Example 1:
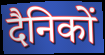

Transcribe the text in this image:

दैनिकों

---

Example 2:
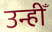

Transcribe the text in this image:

उन्हीँ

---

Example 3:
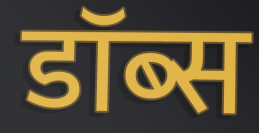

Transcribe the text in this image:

डॉब्स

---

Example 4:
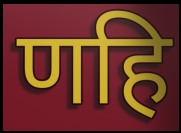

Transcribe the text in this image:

णहि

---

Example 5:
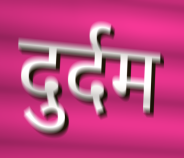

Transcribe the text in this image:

दुर्दम